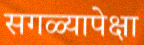
सगळ्यापेक्षा